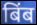
बिंब